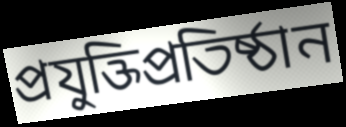
প্রযুক্তিপ্রতিষ্ঠান